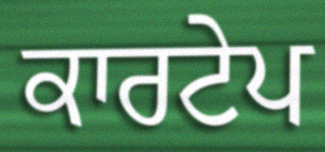
ਕਾਰਟੇਪ